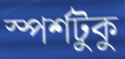
স্পর্শটুকু